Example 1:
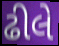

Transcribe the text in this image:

ઢીલે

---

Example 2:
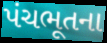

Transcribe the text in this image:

પંચભૂતના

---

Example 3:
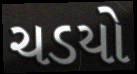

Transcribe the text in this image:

ચડયો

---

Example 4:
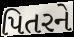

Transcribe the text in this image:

પિતરને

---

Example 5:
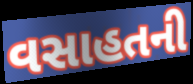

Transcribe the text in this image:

વસાહતની